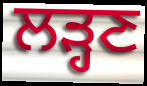
ਲੜ੍ਹਣ